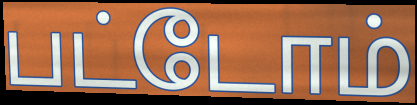
பட்டோம்